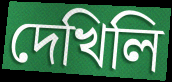
দেখিলি